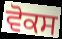
ਵੋਕਸ